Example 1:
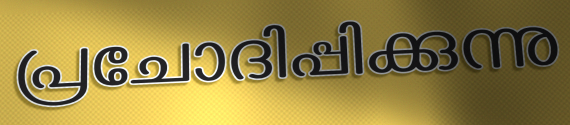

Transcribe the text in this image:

പ്രചോദിപ്പിക്കുന്നു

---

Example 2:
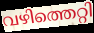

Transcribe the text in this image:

വഴിത്തെറ്റി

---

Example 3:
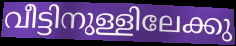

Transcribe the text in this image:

വീട്ടിനുള്ളിലേക്കു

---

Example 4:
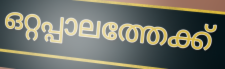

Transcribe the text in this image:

ഒറ്റപ്പാലത്തേക്ക്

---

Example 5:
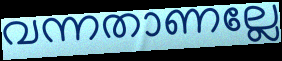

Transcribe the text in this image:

വന്നതാണല്ലേ